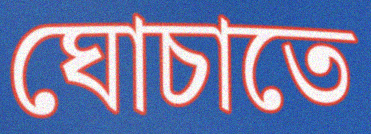
ঘোচাতে